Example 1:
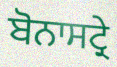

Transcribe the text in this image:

ਬੋਨਾਸਟ੍ਰੇ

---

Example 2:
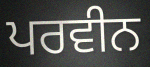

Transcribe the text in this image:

ਪਰਵੀਨ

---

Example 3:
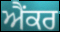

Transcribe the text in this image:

ਐਂਕਰ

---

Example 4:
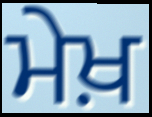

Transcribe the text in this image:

ਮੇਖ਼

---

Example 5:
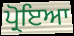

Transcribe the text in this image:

ਪ੍ਰੋਇਆ